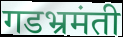
गडभ्रमंती